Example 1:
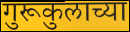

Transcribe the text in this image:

गुरूकुलाच्या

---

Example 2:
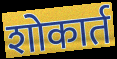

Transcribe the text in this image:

शोकार्त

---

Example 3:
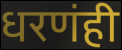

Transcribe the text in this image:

धरणंही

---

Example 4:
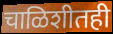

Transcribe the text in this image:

चाळिशीतही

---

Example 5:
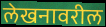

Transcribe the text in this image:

लेखनावरील